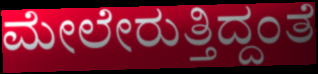
ಮೇಲೇರುತ್ತಿದ್ದಂತೆ